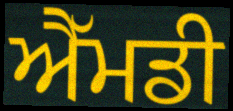
ਐੱਮਡੀ